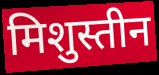
मिशुस्तीन